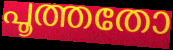
പൂത്തതോ